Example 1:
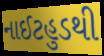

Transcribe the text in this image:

નાઈટહુડથી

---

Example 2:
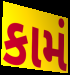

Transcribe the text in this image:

કામં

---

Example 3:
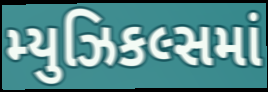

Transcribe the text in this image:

મ્યુઝિકલ્સમાં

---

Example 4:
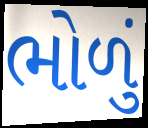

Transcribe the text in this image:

ભોળું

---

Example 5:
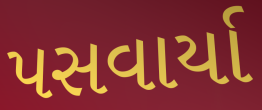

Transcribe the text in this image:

પસવાર્યા